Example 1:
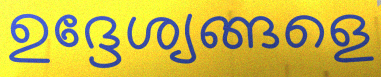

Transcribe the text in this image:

ഉദ്ദേശ്യങ്ങളെ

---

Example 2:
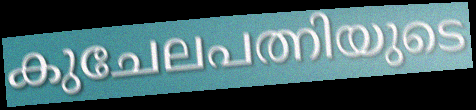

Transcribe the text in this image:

കുചേലപത്നിയുടെ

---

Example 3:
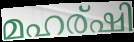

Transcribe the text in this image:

മഹര്ഷി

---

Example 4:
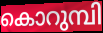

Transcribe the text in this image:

കൊറുമ്പി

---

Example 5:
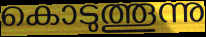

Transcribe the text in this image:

കൊടുത്തൂന്നു